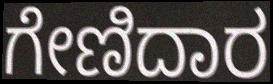
ಗೇಣಿದಾರ